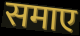
समाए